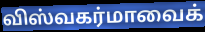
விஸ்வகர்மாவைக்